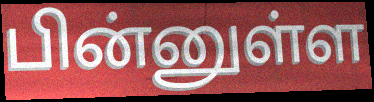
பின்னுள்ள